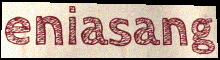
eniasang